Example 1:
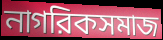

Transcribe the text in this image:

নাগরিকসমাজ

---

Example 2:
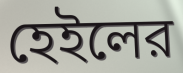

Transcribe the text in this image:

হেইলের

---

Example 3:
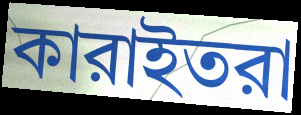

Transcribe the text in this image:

কারাইতরা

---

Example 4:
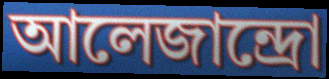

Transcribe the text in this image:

আলেজান্দ্রো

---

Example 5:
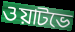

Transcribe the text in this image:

ওয়াটভে